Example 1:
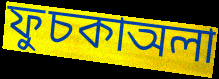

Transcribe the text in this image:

ফুচকাঅলা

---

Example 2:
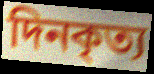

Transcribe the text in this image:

দিনকৃত্য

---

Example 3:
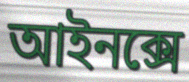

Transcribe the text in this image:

আইনক্সে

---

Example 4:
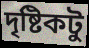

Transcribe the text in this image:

দৃষ্টিকটু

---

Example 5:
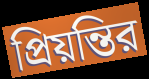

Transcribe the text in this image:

প্রিয়ন্তির